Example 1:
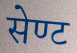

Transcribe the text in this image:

सेण्ट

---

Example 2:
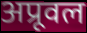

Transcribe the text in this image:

अप्रूवल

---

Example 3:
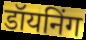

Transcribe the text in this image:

डॉयनिंग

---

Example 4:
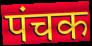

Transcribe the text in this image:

पंचक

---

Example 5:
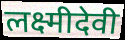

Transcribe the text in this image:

लक्ष्मीदेवी